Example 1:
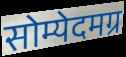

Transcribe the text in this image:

सोम्येदमग्र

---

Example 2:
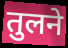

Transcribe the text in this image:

तुलने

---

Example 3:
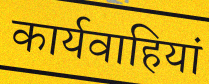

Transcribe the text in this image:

कार्यवाहियां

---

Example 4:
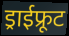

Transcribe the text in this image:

ड्राईफ्रूट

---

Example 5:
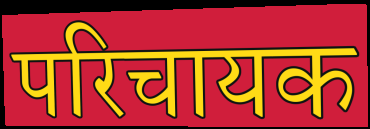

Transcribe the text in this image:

परिचायक